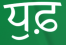
ਧੁਫ਼